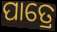
ପାତ୍ରେ